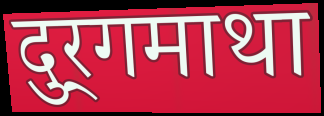
दुर्गमाथा